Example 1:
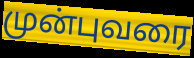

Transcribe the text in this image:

முன்புவரை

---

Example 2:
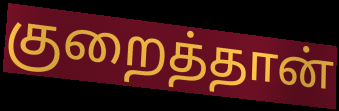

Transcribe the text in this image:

குறைத்தான்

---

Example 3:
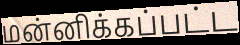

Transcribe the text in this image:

மன்னிக்கப்பட்ட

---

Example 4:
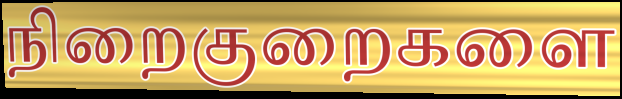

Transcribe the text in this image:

நிறைகுறைகளை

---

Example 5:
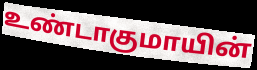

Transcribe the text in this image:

உண்டாகுமாயின்